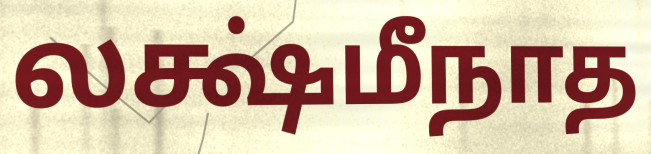
லக்ஷ்மீநாத